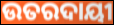
ଉତରଦାୟୀ